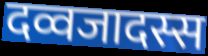
दव्वजादस्स